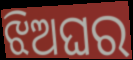
ଝିଅଘର